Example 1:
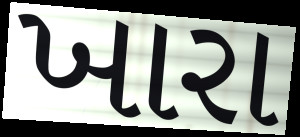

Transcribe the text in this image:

ખારા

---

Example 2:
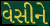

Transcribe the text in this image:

વેસીને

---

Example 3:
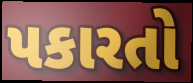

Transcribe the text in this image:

પકારતો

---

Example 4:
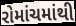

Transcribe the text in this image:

રોમાંચમાંથી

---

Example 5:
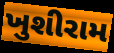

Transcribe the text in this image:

ખુશીરામ